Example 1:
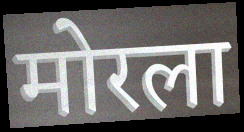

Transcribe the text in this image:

मोरला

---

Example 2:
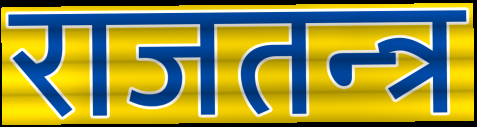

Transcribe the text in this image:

राजतन्त्र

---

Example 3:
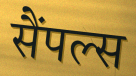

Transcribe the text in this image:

सैंपल्स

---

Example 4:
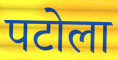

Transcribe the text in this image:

पटोला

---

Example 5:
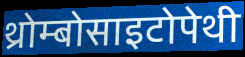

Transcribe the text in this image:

थ्रोम्बोसाइटोपेथी